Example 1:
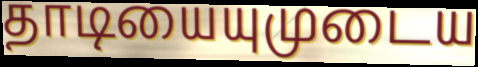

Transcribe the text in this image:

தாடியையுமுடைய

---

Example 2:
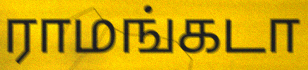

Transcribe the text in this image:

ராமங்கடா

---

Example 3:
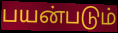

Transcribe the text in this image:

பயன்படும்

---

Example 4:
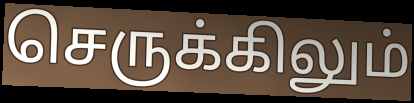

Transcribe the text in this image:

செருக்கிலும்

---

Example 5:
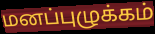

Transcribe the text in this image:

மனப்புழுக்கம்